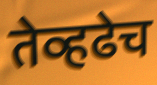
तेव्हढेच